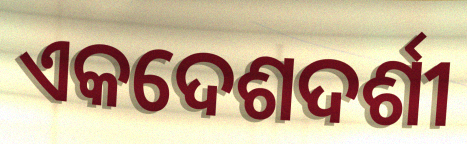
ଏକଦେଶଦର୍ଶୀ